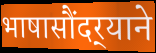
भाषासौंदर्याने